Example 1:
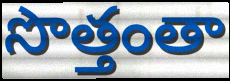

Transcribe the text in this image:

సొత్తంతా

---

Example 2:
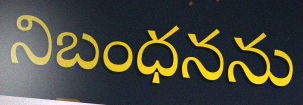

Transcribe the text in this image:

నిబంధనను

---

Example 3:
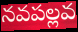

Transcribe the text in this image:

నవపల్లవ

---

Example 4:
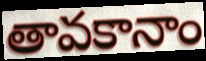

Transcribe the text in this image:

తావకానాం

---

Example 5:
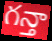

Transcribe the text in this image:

గన్తా